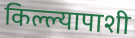
किल्ल्यापाशी